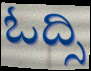
ಓದ್ಸಿ